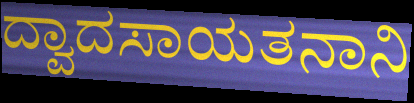
ದ್ವಾದಸಾಯತನಾನಿ